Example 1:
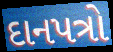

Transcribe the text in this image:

દાનપત્રો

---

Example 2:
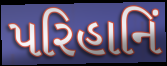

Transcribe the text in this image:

પરિહાનિં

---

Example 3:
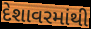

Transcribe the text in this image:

દેશાવરમાંથી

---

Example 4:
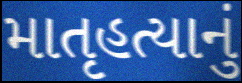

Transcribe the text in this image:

માતૃહત્યાનું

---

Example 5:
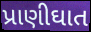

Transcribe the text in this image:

પ્રાણીઘાત